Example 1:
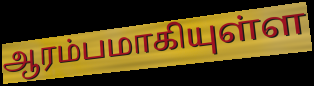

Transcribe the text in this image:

ஆரம்பமாகியுள்ள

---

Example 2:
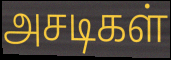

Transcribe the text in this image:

அசடிகள்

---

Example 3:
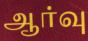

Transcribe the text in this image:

ஆர்வு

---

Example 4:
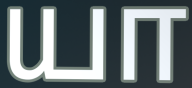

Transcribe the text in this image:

யா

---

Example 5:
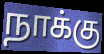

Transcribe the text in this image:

நாக்கு